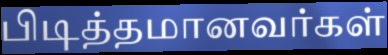
பிடித்தமானவர்கள்